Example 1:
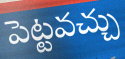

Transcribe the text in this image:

పెట్టవచ్చు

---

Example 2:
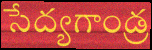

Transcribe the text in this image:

సేద్యగాండ్ర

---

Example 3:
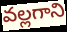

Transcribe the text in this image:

వల్లగాని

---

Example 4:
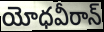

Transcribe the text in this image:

యోధవీరాన్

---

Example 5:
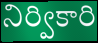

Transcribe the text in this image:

నిర్వికారి